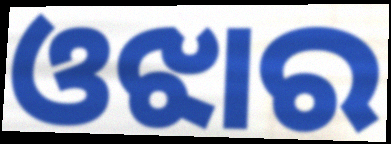
ଓଝାର